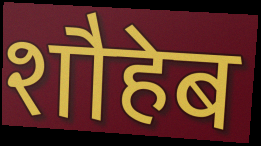
शौहेब